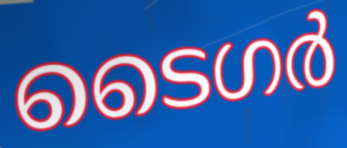
ടൈഗർ